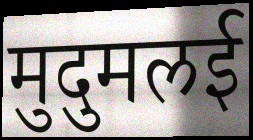
मुदुमलई